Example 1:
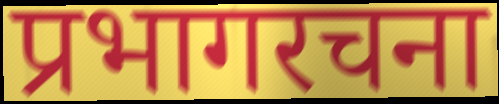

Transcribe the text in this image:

प्रभागरचना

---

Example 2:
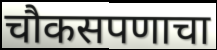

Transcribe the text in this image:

चौकसपणाचा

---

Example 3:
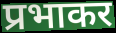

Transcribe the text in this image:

प्रभाकर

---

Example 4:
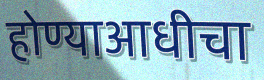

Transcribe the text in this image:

होण्याआधीचा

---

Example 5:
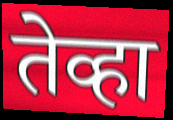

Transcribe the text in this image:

तेव्हा